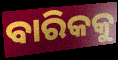
ବାରିକକୁ